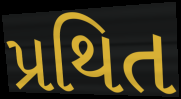
પ્રથિત